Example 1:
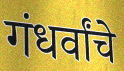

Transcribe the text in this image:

गंधर्वांचे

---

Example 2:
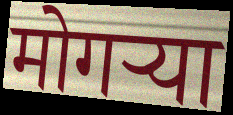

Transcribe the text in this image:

मोगऱ्या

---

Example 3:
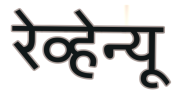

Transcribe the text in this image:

रेव्हेन्यू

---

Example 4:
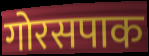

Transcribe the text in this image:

गोरसपाक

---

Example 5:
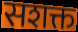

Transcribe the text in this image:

सशक्त